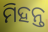
ମିହନ୍ତ